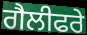
ਗੈਲੀਫਰੇ